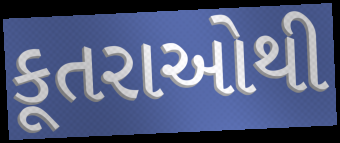
કૂતરાઓથી